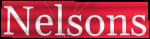
Nelsons